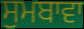
ਸੁਮਬਾਵਾ